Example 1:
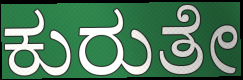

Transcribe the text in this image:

ಕುರುತೇ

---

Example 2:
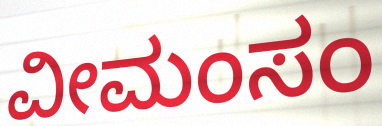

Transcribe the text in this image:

ವೀಮಂಸಂ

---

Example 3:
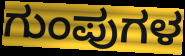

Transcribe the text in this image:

ಗುಂಪುಗಳ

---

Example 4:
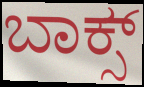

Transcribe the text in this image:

ಬಾಕ್ಸ್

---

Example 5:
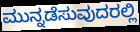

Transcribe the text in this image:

ಮುನ್ನಡೆಸುವುದರಲ್ಲಿ